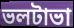
ভলটাভা